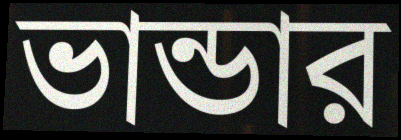
ভান্ডার